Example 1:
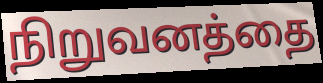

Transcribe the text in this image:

நிறுவனத்தை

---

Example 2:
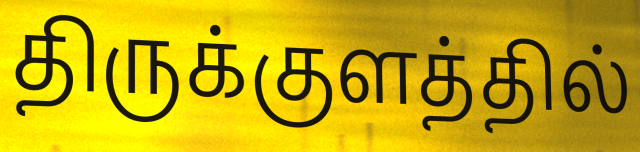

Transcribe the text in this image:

திருக்குளத்தில்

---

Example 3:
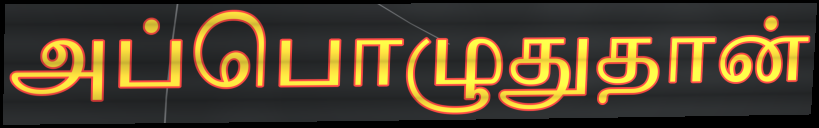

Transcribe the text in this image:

அப்பொழுதுதான்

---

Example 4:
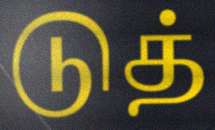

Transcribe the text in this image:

டுத்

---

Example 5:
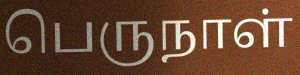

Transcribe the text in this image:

பெருநாள்